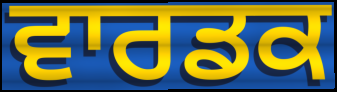
ਵਾਰਡਕ